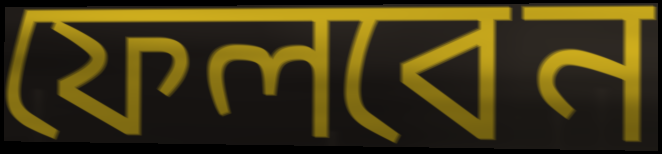
ফেলবেন